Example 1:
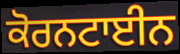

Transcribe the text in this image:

ਕੋਰਨਟਾਈਨ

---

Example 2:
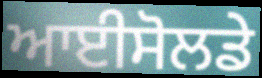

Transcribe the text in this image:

ਆਈਸੋਲਡੇ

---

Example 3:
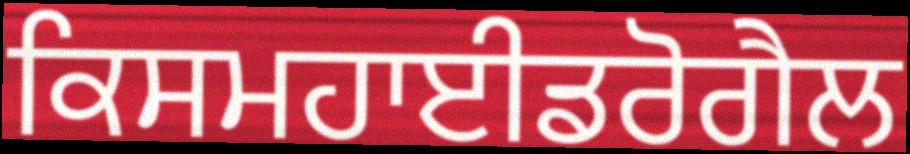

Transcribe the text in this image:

ਕਿਸਮਹਾਈਡਰੋਗੈਲ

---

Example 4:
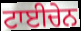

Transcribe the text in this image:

ਟਾਈਚੇਨ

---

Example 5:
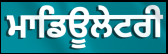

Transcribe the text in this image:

ਮਾਡਿਊਲੇਟਰੀ